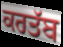
ਕਰਤੱਬ